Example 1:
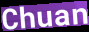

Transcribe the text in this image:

Chuan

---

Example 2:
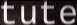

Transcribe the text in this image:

tute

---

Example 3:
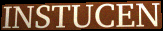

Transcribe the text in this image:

INSTUCEN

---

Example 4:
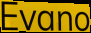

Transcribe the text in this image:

Evano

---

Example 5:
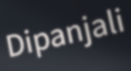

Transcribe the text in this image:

Dipanjali